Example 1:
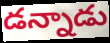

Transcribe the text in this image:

డన్నాడు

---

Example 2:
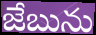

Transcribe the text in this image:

జేబును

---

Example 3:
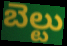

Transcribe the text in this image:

బెల్టు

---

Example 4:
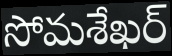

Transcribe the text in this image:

సోమశేఖర్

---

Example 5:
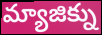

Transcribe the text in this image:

మ్యాజిక్ను